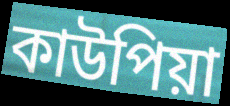
কাউপিয়া